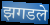
झगडले